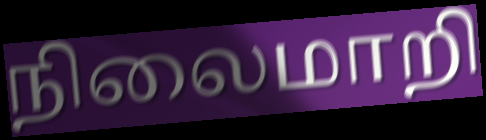
நிலைமாறி